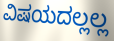
ವಿಷಯದಲ್ಲಲ್ಲ